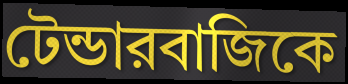
টেন্ডারবাজিকে